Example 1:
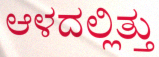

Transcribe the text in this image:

ಆಳದಲ್ಲಿತ್ತು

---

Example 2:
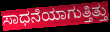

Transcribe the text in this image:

ಸಾಧನೆಯಾಗುತ್ತಿತ್ತು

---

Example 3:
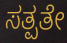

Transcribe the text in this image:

ಸತ್ಪತೇ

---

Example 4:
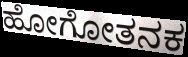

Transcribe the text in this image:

ಹೋಗೋತನಕ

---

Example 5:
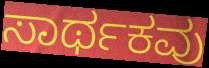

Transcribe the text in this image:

ಸಾರ್ಥಕವು